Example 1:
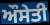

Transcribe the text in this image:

ਔਸੇਤੀ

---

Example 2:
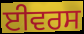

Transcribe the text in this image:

ਈਵਰਸ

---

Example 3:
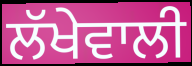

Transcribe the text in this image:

ਲੱਖੇਵਾਲੀ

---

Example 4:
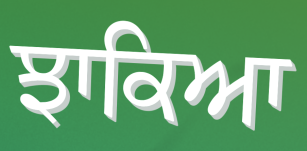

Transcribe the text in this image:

ਝਾਕਿਆ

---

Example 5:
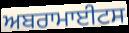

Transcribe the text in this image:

ਅਬਰਾਮਾਈਟਸ